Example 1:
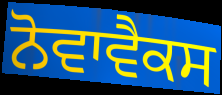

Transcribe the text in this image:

ਨੋਵਾਵੈਕਸ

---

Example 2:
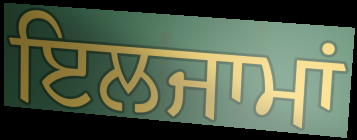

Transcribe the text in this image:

ਇਲਜਾਮਾਂ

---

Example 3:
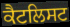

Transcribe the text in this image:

ਕੈਟਲਿਸਟ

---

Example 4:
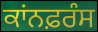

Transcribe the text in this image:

ਕਾਂਨਫ਼ਰੰਸ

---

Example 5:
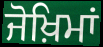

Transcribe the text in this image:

ਜੋਖ਼ਿਮਾਂ